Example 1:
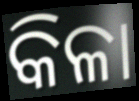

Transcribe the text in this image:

କିଳା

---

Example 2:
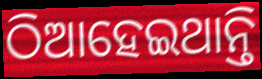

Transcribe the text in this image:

ଠିଆହେଇଥାନ୍ତି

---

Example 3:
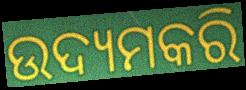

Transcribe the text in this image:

ଉଦ୍ୟମକରି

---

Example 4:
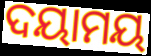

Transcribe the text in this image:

ଦୟାମୟ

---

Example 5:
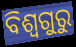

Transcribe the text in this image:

ବିଶ୍ୱଗୁରୁ